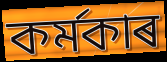
কৰ্মকাৰ